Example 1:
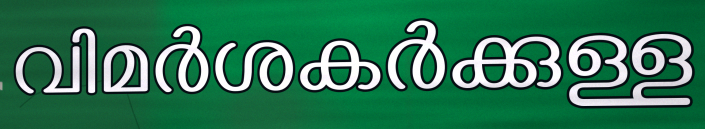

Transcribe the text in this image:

വിമർശകർക്കുള്ള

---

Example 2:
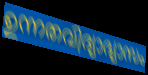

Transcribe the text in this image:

ഉന്നതവിദ്യാഭ്യാസം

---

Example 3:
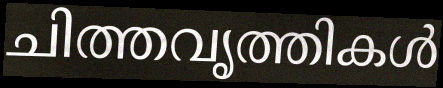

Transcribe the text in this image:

ചിത്തവൃത്തികൾ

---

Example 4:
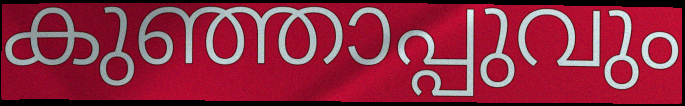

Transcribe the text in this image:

കുഞ്ഞാപ്പുവും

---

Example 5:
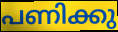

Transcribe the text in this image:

പണിക്കു